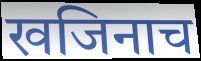
खजिनाच